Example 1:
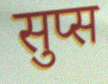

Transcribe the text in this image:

सुप्स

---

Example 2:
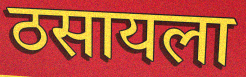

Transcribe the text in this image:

ठसायला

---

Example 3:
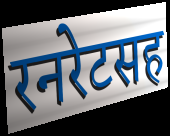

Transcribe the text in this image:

रनरेटसह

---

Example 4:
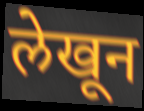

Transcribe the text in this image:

लेखून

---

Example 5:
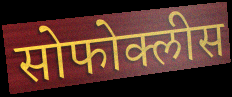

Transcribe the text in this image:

सोफोक्लीस